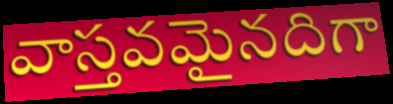
వాస్తవమైనదిగా